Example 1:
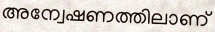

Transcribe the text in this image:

അന്വേഷണത്തിലാണ്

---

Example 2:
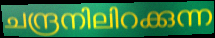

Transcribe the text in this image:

ചന്ദ്രനിലിറക്കുന്ന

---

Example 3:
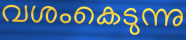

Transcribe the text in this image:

വശംകെടുന്നു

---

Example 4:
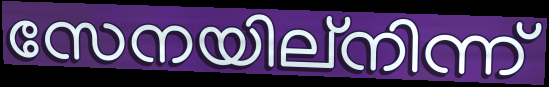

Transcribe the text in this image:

സേനയില്നിന്ന്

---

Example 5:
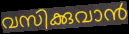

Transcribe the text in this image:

വസിക്കുവാൻ